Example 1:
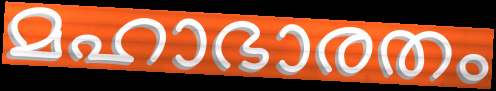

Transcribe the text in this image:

മഹാഭാരതം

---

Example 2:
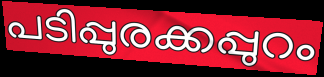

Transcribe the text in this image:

പടിപ്പുരക്കപ്പുറം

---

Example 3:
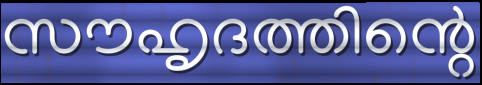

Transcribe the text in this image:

സൗഹൃദത്തിന്റെ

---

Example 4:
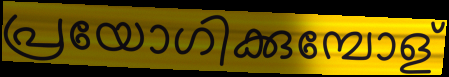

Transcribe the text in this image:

പ്രയോഗിക്കുമ്പോള്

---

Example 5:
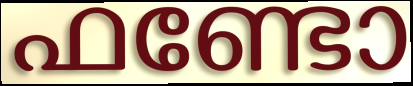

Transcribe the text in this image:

ഫണ്ടോ